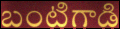
బంటిగాడి